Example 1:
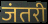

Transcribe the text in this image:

जंतरी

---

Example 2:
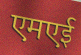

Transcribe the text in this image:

एमएई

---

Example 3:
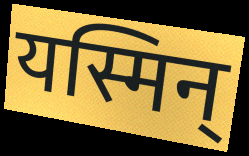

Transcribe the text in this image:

यस्मिन्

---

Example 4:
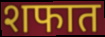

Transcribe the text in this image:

शफात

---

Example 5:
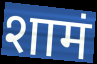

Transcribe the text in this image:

शामं